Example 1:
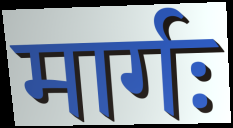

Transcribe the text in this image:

मार्गः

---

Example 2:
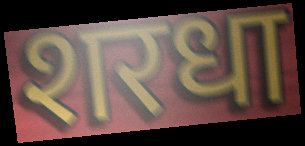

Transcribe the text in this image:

शरधा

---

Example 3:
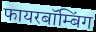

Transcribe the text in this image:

फायरबॉम्बिंग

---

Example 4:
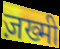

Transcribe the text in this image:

ज़ख्मी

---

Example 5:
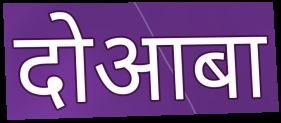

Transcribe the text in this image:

दोआबा